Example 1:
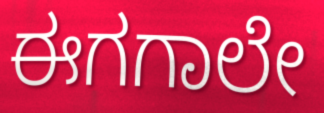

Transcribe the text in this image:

ಈಗಗಾಲೇ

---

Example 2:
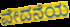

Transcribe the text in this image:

ವೇದನೆಯ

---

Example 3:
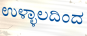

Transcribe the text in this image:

ಉಳ್ಳಾಲದಿಂದ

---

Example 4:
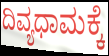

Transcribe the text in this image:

ದಿವ್ಯಧಾಮಕ್ಕೆ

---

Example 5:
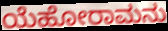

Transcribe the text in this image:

ಯೆಹೋರಾಮನು